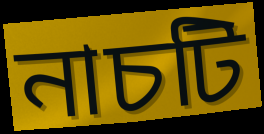
নাচটি